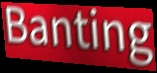
Banting